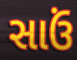
સાઉં